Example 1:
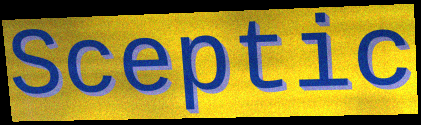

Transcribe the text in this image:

Sceptic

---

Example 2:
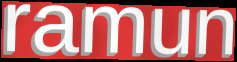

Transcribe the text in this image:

ramun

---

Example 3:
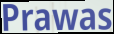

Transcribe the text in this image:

Prawas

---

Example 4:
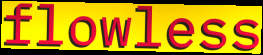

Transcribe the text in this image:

flowless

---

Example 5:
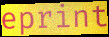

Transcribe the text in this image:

eprint